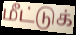
மீட்டுக்